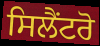
ਸਿਲੈਂਟਰੋ